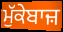
ਮੁੱਕੇਬਾਜ਼